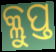
କ୍ଲୁପ୍ତ